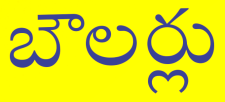
బౌలర్లు